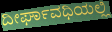
ದೀರ್ಘಾವಧಿಯಲ್ಲಿ